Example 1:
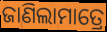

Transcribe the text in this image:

ଜାଣିଲାମାତ୍ରେ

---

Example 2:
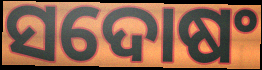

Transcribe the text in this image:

ସଦୋଷଂ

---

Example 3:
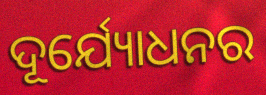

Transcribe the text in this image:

ଦୂର୍ଯ୍ୟୋଧନର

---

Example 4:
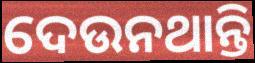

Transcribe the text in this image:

ଦେଉନଥାନ୍ତି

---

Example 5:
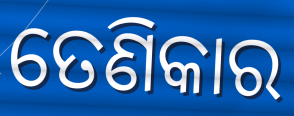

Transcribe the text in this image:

ତେଣିକାର